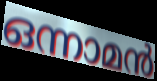
ഒന്നാമൻ